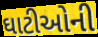
ઘાટીઓની